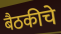
बैठकीचे